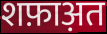
शफ़ाअ़त